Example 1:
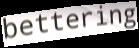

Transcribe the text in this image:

bettering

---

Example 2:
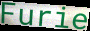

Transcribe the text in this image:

Furie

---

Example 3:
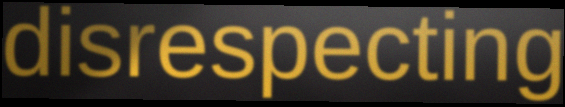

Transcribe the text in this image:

disrespecting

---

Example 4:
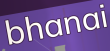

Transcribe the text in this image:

bhanai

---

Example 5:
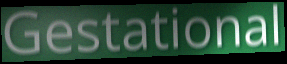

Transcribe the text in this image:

Gestational